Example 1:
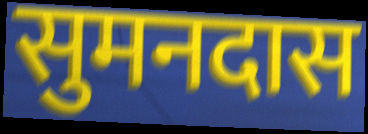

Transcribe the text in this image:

सुमनदास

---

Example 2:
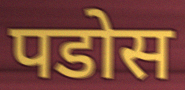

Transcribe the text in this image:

पडोस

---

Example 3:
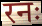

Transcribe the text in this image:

रनः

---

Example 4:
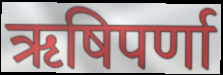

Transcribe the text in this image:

ऋषिपर्णा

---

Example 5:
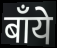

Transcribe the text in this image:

बाँये